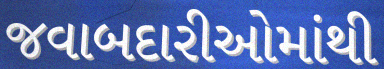
જવાબદારીઓમાંથી